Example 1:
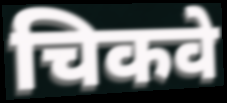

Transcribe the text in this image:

चिकवे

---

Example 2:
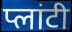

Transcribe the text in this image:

प्लांटी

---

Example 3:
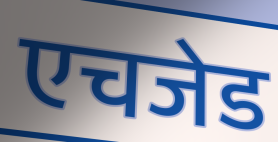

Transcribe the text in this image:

एचजेड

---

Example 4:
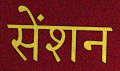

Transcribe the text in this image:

सेंशन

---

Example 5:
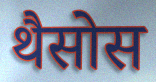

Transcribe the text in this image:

थैसोस